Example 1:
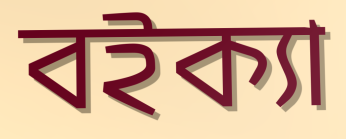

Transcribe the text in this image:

বইক্যা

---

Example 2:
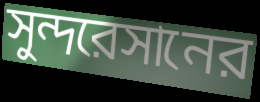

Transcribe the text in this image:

সুন্দরেসানের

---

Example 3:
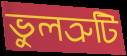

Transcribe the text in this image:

ভুলত্রুটি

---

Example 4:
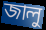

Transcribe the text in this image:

জালু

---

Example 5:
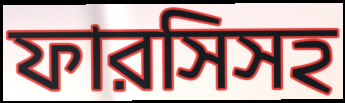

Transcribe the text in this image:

ফারসিসহ